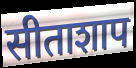
सीताशाप